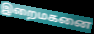
இறைமகனை